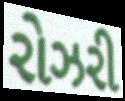
રોઝરી